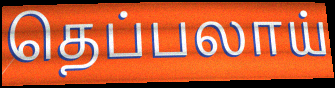
தெப்பலாய்